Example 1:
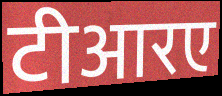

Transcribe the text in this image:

टीआरए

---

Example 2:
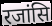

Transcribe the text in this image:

रजांसि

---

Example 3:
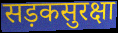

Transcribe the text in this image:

सड़कसुरक्षा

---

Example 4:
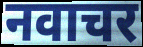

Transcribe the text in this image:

नवाचर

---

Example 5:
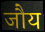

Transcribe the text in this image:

जौय